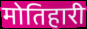
मोतिहारी